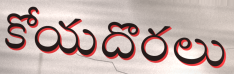
కోయదొరలు